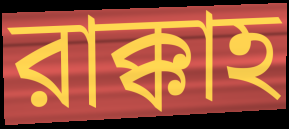
রাক্কাহ